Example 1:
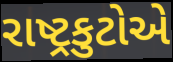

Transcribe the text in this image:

રાષ્ટ્રકુટોએ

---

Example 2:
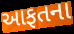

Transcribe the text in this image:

આફતના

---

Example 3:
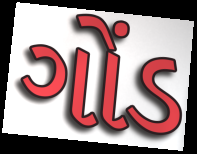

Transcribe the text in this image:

ગોંડ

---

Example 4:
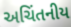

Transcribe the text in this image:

અચિંતનીય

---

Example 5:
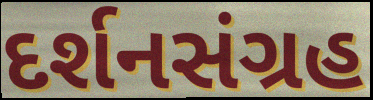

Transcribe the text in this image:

દર્શનસંગ્રહ